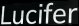
Lucifer